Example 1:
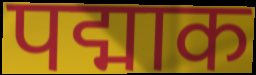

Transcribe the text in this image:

पद्माक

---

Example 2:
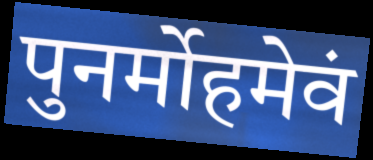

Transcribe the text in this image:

पुनर्मोहमेवं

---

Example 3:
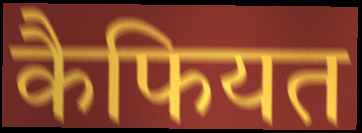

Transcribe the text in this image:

कैफियत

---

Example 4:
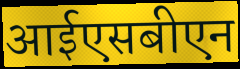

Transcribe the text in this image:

आईएसबीएन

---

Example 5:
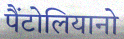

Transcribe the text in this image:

पैंटोलियानो